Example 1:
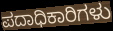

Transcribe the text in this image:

ಪದಾಧಿಕಾರಿಗಳು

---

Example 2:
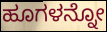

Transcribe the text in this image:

ಹೂಗಳನ್ನೋ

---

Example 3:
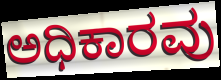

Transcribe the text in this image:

ಅಧಿಕಾರವು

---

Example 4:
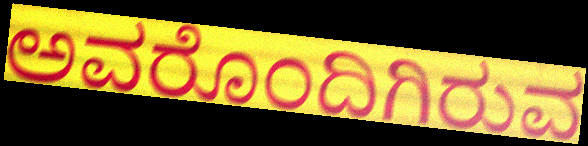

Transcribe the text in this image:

ಅವರೊಂದಿಗಿರುವ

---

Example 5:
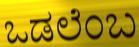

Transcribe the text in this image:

ಒಡಲೆಂಬ